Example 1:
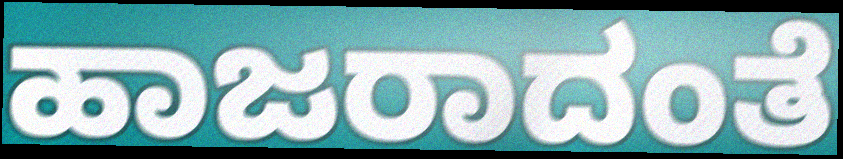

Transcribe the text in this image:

ಹಾಜರಾದಂತೆ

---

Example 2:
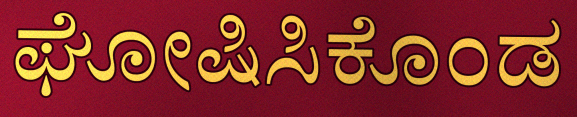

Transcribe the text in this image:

ಘೋಷಿಸಿಕೊಂಡ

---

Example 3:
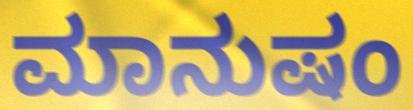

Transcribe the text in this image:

ಮಾನುಷಂ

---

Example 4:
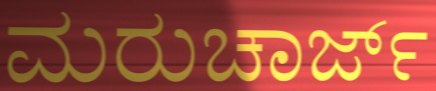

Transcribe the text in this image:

ಮರುಚಾರ್ಜ್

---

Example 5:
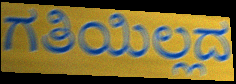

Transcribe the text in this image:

ಗತಿಯಿಲ್ಲದ